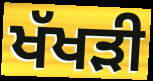
ਖੱਖੜੀ